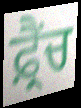
ਫ਼੍ਰੈਂਚ